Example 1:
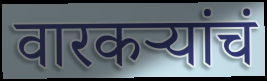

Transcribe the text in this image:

वारकऱ्यांचं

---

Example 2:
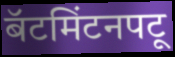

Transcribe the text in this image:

बॅटमिंटनपटू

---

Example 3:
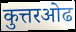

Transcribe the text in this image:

कुत्तरओढ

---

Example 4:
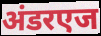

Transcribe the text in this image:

अंडरएज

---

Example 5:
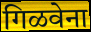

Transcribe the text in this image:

गिळवेना